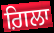
ਗ਼ਿਲਾ